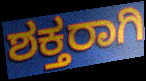
ಶಕ್ತರಾಗಿ